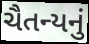
ચૈતન્યનું